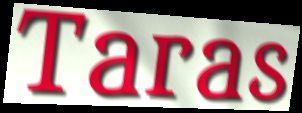
Taras